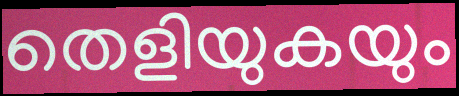
തെളിയുകയും